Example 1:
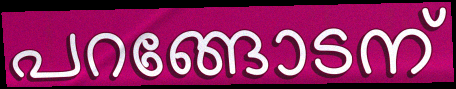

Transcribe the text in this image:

പറങ്ങോടന്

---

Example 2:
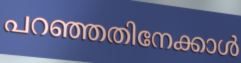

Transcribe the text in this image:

പറഞ്ഞതിനേക്കാൾ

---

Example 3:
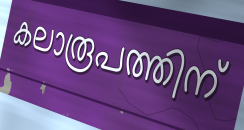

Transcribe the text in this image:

കലാരൂപത്തിന്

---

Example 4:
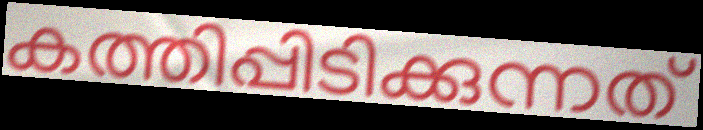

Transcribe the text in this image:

കത്തിപ്പിടിക്കുന്നത്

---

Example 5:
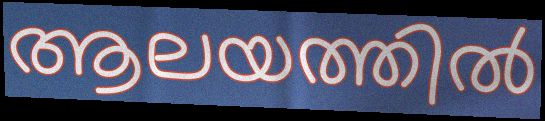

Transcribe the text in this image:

ആലയത്തിൽ